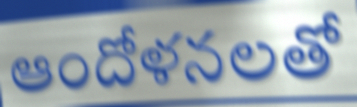
ఆందోళనలతో